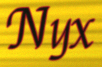
Nyx